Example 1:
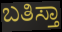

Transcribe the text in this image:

ಬತಿಸ್ತಾ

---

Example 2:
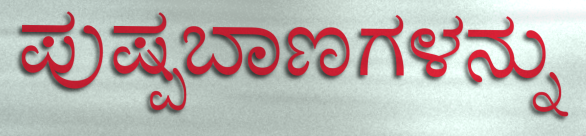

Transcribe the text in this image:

ಪುಷ್ಪಬಾಣಗಳನ್ನು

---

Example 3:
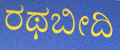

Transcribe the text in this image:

ರಥಬೀದಿ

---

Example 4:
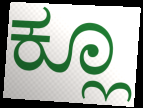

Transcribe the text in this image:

ಕ್ಲೂ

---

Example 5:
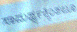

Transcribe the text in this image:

ಸಾಮರ್ಥ್ಯಕ್ಕಿಂತಲೂ